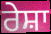
ਰੇਸ਼ਾ